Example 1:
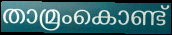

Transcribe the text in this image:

താമ്രംകൊണ്ട്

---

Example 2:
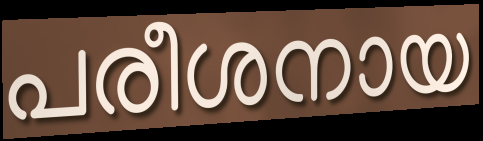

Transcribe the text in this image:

പരീശനായ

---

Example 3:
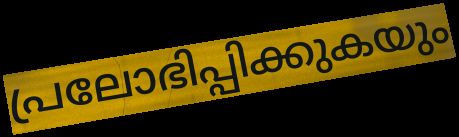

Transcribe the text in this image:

പ്രലോഭിപ്പിക്കുകയും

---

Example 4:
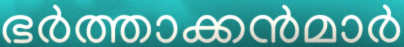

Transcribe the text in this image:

ഭർത്താക്കൻമാർ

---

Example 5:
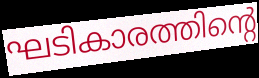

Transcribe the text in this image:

ഘടികാരത്തിന്റെ